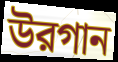
উরগান